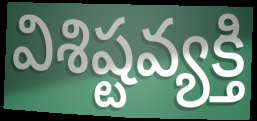
విశిష్టవ్యక్తి